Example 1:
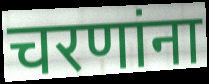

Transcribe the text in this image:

चरणांना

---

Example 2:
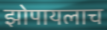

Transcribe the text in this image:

झोपायलाच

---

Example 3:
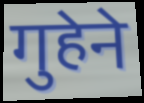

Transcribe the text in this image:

गुहेने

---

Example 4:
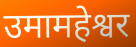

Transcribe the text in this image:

उमामहेश्वर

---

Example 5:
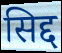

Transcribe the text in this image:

सिद्द